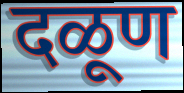
दळूण